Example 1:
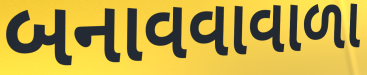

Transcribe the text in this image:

બનાવવાવાળા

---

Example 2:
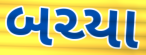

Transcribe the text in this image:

બચ્યા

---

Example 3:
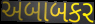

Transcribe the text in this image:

અબાબકર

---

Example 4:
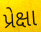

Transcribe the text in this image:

પ્રેક્ષા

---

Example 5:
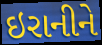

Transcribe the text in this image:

ઇરાનીને